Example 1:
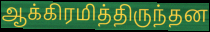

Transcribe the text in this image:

ஆக்கிரமித்திருந்தன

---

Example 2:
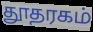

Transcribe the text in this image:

தூதரகம்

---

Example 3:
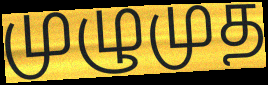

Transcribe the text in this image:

முழுமுத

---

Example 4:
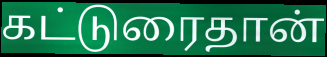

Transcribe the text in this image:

கட்டுரைதான்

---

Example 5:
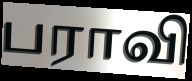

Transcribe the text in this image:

பராவி